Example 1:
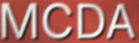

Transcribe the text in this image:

MCDA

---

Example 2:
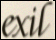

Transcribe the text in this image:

exil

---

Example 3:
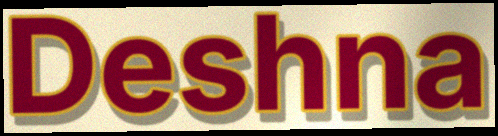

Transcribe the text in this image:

Deshna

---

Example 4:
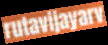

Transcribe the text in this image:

rutavijayarv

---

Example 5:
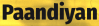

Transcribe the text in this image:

Paandiyan